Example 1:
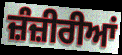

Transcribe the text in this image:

ਜ਼ੰਜ਼ੀਰੀਆਂ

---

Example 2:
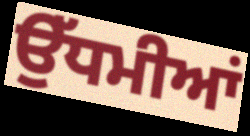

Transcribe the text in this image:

ਉੱਧਮੀਆਂ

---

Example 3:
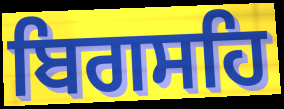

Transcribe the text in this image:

ਬਿਗਸਹਿ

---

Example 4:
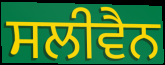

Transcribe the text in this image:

ਸਲੀਵੈਨ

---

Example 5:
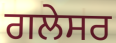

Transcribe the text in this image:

ਗਲੇਸਰ